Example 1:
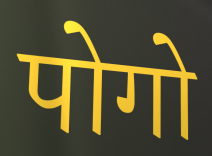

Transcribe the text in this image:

पोगो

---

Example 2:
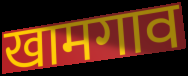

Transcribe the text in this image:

खामगाव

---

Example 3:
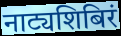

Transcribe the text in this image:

नाट्यशिबिरं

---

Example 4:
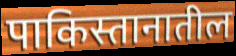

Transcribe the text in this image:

पाकिस्तानातील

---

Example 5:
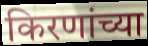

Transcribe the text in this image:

किरणांच्या